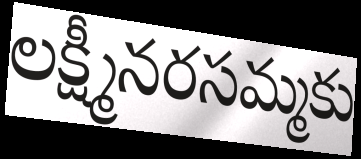
లక్ష్మీనరసమ్మకు